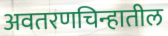
अवतरणचिन्हातील